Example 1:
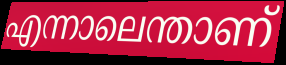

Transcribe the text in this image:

എന്നാലെന്താണ്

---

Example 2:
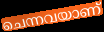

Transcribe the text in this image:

ചെന്നവയാണ്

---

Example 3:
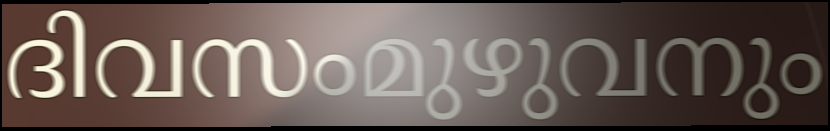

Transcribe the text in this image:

ദിവസംമുഴുവനും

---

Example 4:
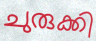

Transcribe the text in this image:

ചുരുക്കി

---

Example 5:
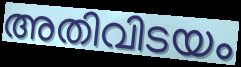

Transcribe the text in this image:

അതിവിടയം